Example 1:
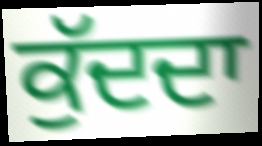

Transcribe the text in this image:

ਕੁੱਦਦਾ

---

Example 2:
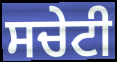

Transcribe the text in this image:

ਸਚੇਟੀ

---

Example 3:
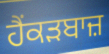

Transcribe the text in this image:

ਹੈਂਕੜਬਾਜ਼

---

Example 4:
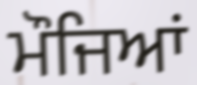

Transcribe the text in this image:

ਮੌਜਿਆਂ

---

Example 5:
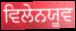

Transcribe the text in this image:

ਵਿਲੇਨਯੂਵ